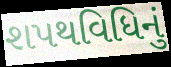
શપથવિધિનું